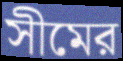
সীমের